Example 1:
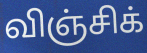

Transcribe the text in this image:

விஞ்சிக்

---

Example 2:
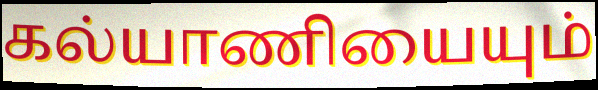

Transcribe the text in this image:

கல்யாணியையும்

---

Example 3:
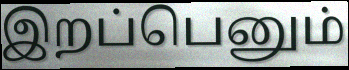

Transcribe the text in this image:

இறப்பெனும்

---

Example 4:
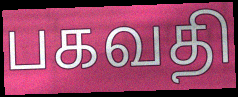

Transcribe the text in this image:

பகவதி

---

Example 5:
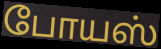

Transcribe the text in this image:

போயஸ்